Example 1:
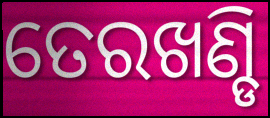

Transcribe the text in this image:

ତେରଖଣ୍ଡି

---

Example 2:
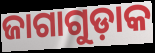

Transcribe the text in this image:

ଜାଗାଗୁଡ଼ାକ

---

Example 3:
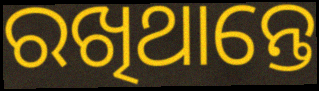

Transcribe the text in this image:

ରଖିଥାନ୍ତେ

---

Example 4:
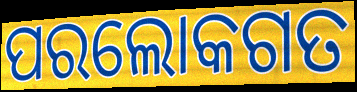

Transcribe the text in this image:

ପରଲୋକଗତ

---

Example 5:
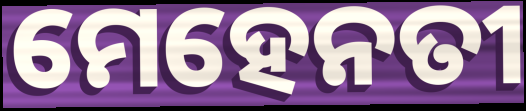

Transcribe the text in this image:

ମେହେନତୀ